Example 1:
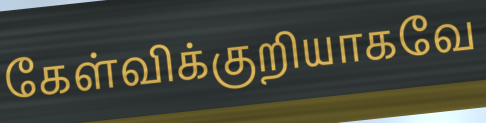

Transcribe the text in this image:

கேள்விக்குறியாகவே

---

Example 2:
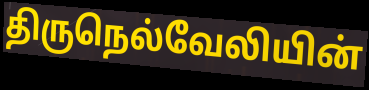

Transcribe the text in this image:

திருநெல்வேலியின்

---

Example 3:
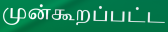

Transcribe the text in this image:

முன்கூறப்பட்ட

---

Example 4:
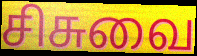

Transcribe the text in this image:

சிசுவை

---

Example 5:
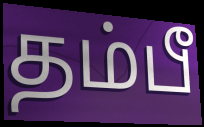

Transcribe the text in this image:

தம்பீ